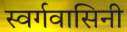
स्वर्गवासिनी